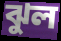
ঝুল